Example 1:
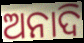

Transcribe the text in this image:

ଅନାଦି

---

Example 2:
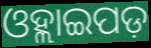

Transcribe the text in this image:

ଓହ୍ଲାଇପଡ଼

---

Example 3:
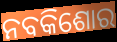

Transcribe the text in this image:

ନବକିଶୋର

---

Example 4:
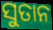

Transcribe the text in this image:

ସୁତାନ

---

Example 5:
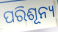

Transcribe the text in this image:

ପରିଶୂନ୍ୟ